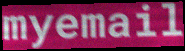
myemail